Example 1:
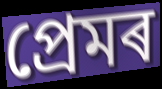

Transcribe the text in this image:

প্ৰেমৰ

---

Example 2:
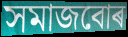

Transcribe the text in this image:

সমাজবোৰ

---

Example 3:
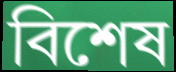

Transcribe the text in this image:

বিশেষ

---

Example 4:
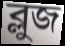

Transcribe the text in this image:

ব্লুজ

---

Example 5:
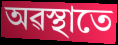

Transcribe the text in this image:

অৱস্থাতে